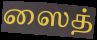
ஸைத்